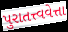
પુરાતત્ત્વવેત્તા